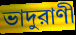
ভাদুরাণী